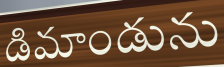
డిమాండును